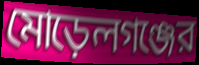
মোড়েলগঞ্জের